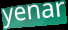
yenar